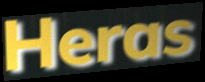
Heras